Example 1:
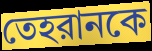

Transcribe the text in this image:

তেহরানকে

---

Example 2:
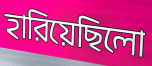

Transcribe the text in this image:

হারিয়েছিলো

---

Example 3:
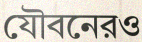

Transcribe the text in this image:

যৌবনেরও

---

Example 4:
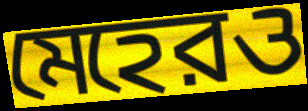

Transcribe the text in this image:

মেহেরও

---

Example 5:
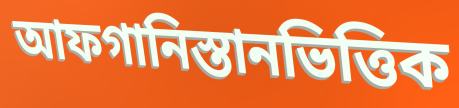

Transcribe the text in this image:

আফগানিস্তানভিত্তিক